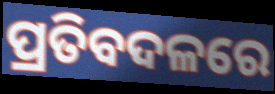
ପ୍ରତିବଦଳରେ